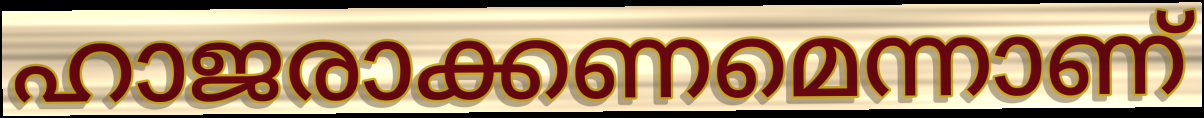
ഹാജരാക്കണമെന്നാണ്